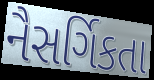
નૈસર્ગિકતા